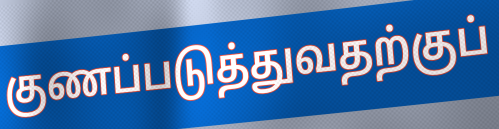
குணப்படுத்துவதற்குப்